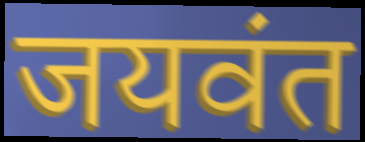
जयवंत